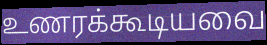
உணரக்கூடியவை